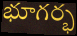
భూగర్భ